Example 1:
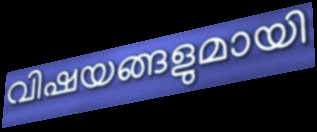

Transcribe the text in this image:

വിഷയങ്ങളുമായി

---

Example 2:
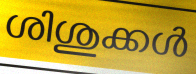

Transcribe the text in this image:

ശിശുക്കൾ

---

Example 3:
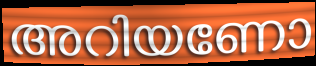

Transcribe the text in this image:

അറിയണോ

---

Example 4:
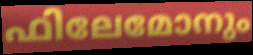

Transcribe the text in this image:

ഫിലേമോനും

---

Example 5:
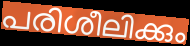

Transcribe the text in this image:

പരിശീലിക്കും